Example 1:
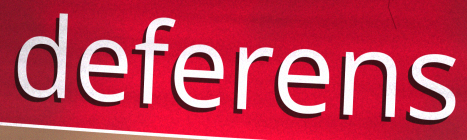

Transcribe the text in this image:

deferens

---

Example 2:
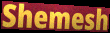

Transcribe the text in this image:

Shemesh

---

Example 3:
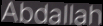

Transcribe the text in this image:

Abdallah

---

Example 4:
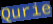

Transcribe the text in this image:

Qurie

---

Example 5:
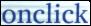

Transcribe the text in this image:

onclick